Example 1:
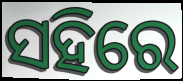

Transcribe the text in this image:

ସହିରେ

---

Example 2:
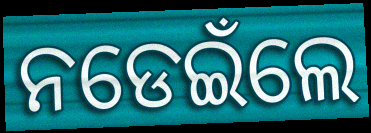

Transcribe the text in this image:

ନଡେଇଁଲେ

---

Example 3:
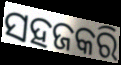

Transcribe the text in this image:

ସହଜକରି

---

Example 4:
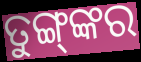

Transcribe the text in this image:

ତୁଙ୍ଗ୍‍ଙ୍କର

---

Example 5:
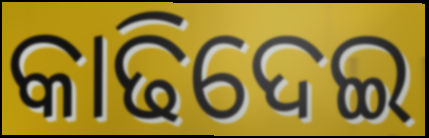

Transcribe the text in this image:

କାଢିଦେଇ